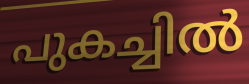
പുകച്ചിൽ